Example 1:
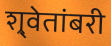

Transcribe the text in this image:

श्र्वेतांबरी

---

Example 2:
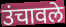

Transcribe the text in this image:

उंचावले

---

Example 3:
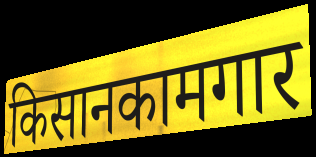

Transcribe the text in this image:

किसानकामगार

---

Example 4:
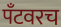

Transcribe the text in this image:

पँटवरच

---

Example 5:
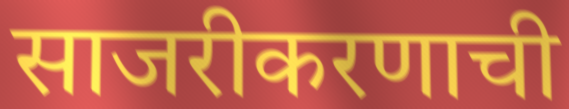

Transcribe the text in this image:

साजरीकरणाची